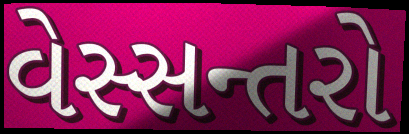
વેસ્સન્તરો